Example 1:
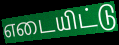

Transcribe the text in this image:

எடையிட்டு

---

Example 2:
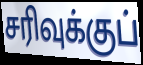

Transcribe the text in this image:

சரிவுக்குப்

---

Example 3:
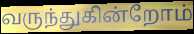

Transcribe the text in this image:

வருந்துகின்றோம்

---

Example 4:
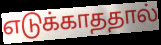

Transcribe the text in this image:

எடுக்காததால்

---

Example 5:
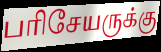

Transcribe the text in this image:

பரிசேயருக்கு